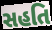
સહતિ